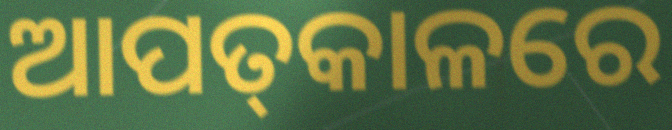
ଆପତ୍‌କାଳରେ